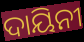
ଦାୟିନୀ